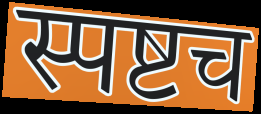
स्पष्टच